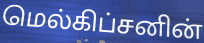
மெல்கிப்சனின்